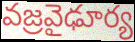
వజ్రవైఢూర్య